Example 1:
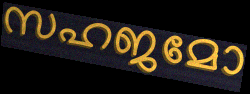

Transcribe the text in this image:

സഹജമോ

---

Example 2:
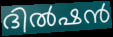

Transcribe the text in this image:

ദിൽഷൻ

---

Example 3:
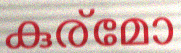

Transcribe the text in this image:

കുര്മോ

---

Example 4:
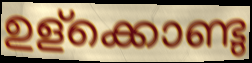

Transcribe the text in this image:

ഉള്ക്കൊണ്ടു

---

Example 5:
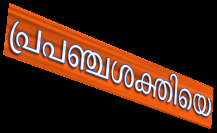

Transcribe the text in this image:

പ്രപഞ്ചശക്തിയെ